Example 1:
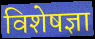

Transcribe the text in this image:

विशेषज्ञा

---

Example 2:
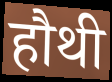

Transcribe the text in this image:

हौथी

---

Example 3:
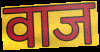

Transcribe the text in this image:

वाज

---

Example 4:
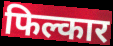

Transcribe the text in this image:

फिल्कार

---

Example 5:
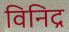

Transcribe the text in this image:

विनिद्र